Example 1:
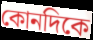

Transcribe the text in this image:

কোনদিকে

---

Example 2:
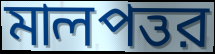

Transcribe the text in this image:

মালপত্তর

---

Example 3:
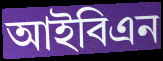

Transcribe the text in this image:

আইবিএন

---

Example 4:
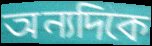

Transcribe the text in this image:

অন্যদিকে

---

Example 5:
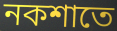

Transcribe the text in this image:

নকশাতে